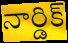
నార్డిక్